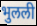
भुलली